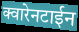
क्वारेनटाईन